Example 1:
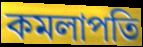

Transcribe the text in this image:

কমলাপতি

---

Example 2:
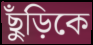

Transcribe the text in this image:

ছুঁড়িকে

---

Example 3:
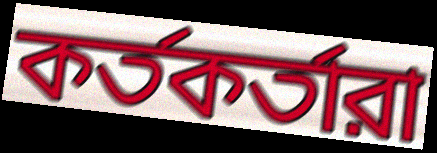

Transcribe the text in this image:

কর্তকর্তারা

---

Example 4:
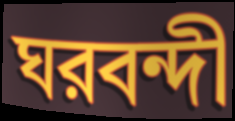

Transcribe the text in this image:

ঘরবন্দী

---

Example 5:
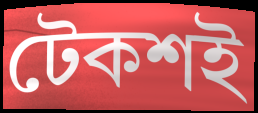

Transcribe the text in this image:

টেকশই